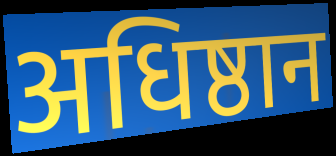
अधिष्ठान